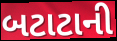
બટાટાની